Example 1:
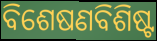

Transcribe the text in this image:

ବିଶେଷଣବିଶିଷ୍ଟ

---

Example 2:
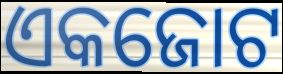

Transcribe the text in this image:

ଏକଜୋଟ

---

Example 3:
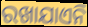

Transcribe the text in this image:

ରଖାଯାଏନି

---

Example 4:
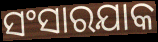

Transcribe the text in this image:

ସଂସାରଯାକ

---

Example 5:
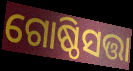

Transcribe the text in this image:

ଗୋଷ୍ଠିସତ୍ତା